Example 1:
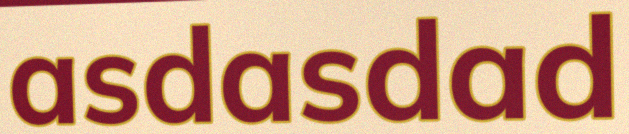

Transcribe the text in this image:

asdasdad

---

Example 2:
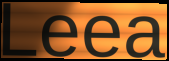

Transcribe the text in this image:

Leea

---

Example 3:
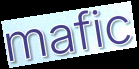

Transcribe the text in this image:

mafic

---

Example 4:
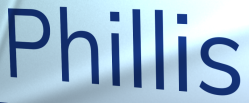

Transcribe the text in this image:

Phillis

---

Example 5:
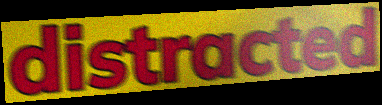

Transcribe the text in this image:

distracted